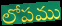
లోపము